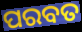
ପରବତ